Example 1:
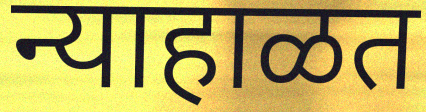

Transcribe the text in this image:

न्याहाळत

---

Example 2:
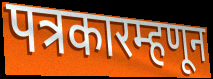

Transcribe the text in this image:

पत्रकारम्हणून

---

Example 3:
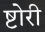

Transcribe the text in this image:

ष्टोरी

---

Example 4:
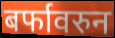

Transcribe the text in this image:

बर्फावरुन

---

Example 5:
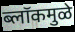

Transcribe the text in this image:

ब्लॉकमुळे